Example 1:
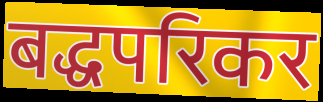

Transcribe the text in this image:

बद्धपरिकर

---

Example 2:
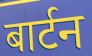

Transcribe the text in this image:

बार्टन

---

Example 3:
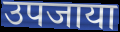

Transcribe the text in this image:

उपजाया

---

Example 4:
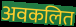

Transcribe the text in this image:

अवकलित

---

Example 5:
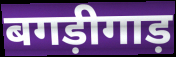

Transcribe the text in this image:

बगड़ीगाड़